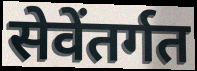
सेवेंतर्गत